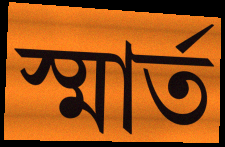
স্মার্ত